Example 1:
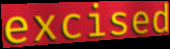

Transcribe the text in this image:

excised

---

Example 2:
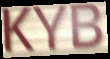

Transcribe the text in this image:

KYB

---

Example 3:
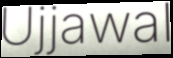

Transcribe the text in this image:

Ujjawal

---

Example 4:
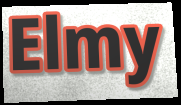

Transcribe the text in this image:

Elmy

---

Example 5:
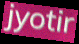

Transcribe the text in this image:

jyotir